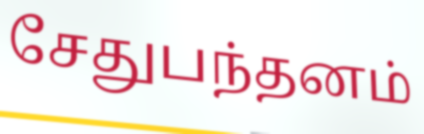
சேதுபந்தனம்